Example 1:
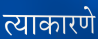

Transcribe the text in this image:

त्याकारणे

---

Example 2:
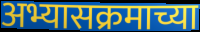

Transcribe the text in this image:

अभ्यासक्रमाच्या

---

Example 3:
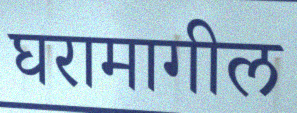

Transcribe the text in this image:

घरामागील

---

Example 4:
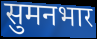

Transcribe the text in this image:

सुमनभार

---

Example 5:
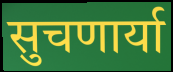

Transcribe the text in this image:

सुचणार्या